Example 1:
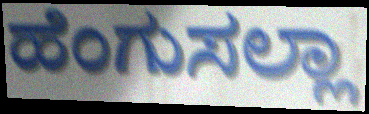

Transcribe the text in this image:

ಹೆಂಗುಸಲ್ಲಾ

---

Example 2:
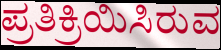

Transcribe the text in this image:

ಪ್ರತಿಕ್ರಿಯಿಸಿರುವ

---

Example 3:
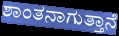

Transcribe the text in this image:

ಶಾಂತನಾಗುತ್ತಾನೆ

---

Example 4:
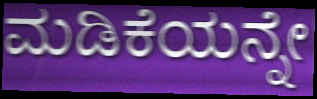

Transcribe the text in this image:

ಮಡಿಕೆಯನ್ನೇ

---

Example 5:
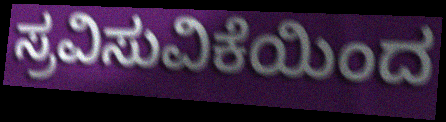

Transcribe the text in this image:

ಸ್ರವಿಸುವಿಕೆಯಿಂದ